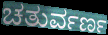
ಚತುರ್ವರ್ಣ